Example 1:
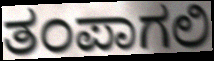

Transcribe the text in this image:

ತಂಪಾಗಲಿ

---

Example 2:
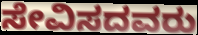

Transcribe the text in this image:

ಸೇವಿಸದವರು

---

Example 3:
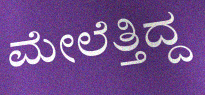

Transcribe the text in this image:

ಮೇಲೆತ್ತಿದ್ದ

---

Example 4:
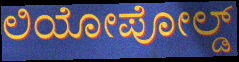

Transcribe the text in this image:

ಲಿಯೋಪೋಲ್ಡ್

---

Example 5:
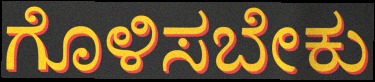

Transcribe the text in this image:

ಗೊಳಿಸಬೇಕು